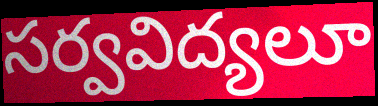
సర్వవిద్యలూ